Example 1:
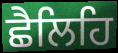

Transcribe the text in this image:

ਛੈਲਿਹਿ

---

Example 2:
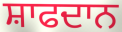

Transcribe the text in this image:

ਸ਼ਾਫਦਾਨ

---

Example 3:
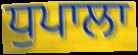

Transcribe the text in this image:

ਧੁਪਾਲਾ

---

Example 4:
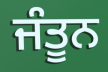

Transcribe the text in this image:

ਜੰਤੂਨ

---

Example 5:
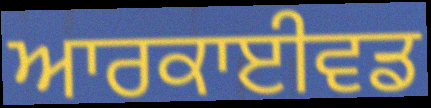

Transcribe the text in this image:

ਆਰਕਾਈਵਡ